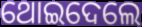
ଥୋଇଦେଲେ